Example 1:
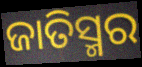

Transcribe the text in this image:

ଜାତିସ୍ମର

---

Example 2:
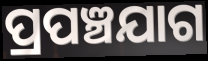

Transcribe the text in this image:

ପ୍ରପଞ୍ଚଯାଗ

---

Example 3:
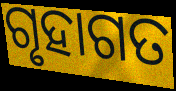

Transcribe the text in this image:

ଗୃହାଗତ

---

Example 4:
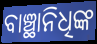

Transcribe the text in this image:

ବାଞ୍ଛାନିଧିଙ୍କ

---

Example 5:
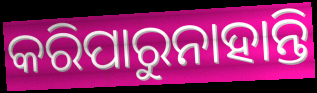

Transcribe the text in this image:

କରିପାରୁନାହାନ୍ତି